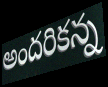
అందరికన్న